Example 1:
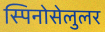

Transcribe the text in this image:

स्पिनोसेलुलर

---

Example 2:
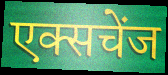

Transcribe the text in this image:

एक्सचेंज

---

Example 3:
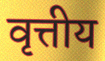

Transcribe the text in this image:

वृत्तीय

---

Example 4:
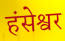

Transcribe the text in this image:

हंसेश्वर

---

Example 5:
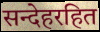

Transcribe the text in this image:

सन्देहरहित